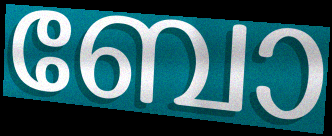
ബോ